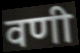
वणी